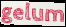
gelum